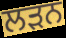
ਲੜਨ